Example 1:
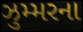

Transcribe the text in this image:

ઝુમ્મરના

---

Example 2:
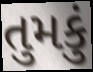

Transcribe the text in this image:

તુમકું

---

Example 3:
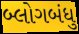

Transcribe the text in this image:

બ્લોગબંધુ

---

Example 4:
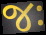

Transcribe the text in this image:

જઃ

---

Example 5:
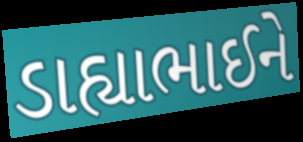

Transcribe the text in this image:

ડાહ્યાભાઈને